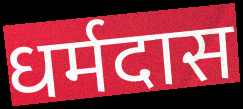
धर्मदास